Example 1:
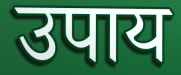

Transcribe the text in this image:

उपाय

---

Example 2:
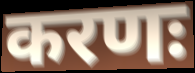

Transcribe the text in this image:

करणः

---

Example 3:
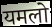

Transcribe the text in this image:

यमलो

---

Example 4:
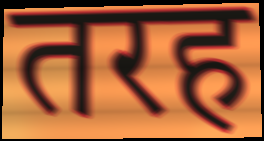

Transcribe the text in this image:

तरह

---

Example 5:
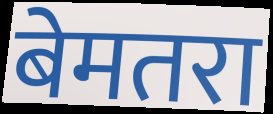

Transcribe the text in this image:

बेमतरा